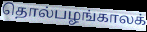
தொல்பழங்காலக்